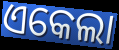
ଏକେଲା